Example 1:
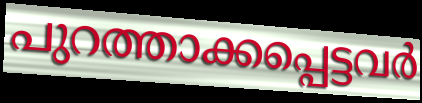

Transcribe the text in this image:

പുറത്താക്കപ്പെട്ടവർ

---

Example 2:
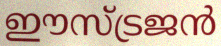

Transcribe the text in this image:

ഈസ്ട്രജൻ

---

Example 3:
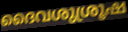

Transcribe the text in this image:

ദൈവശുശ്രൂഷ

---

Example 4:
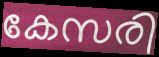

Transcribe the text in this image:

കേസരി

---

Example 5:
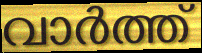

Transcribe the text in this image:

വാർത്ത്